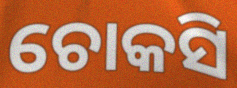
ଚୋକସି